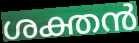
ശക്തൻ